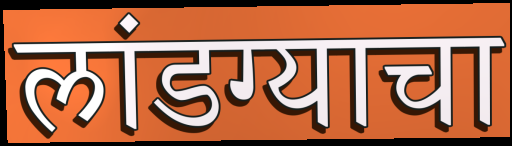
लांडग्याचा